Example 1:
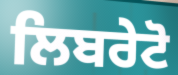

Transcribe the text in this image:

ਲਿਬਰੇਟੋ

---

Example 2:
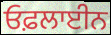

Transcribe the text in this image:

ਓਫ਼ਲਾਈਨ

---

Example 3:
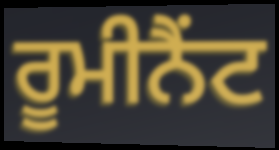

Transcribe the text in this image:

ਰੂਮੀਨੈਂਟ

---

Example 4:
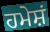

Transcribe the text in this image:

ਹਮੇਸ਼ਂ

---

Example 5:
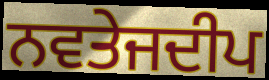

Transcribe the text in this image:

ਨਵਤੇਜਦੀਪ